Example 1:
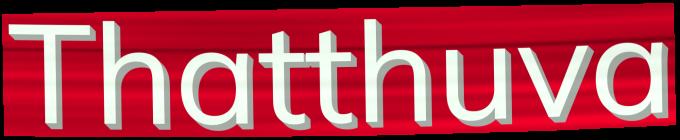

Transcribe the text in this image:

Thatthuva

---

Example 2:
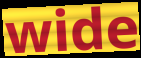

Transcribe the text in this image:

wide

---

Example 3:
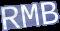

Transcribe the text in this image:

RMB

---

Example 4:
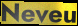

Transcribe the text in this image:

Neveu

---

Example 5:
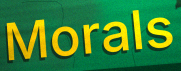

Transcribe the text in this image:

Morals